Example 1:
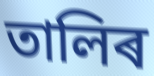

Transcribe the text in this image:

তালিৰ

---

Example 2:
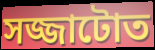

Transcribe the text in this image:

সজ্জাটোত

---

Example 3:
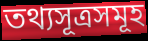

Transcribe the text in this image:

তথ্যসূত্ৰসমূহ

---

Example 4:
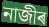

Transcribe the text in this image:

নাজীৰ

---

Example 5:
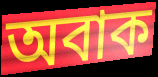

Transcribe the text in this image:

অবাক